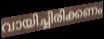
വായിച്ചിരിക്കണം